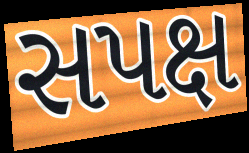
સપક્ષ